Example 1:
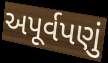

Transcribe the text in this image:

અપૂર્વપણું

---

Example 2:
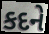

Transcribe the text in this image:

કદને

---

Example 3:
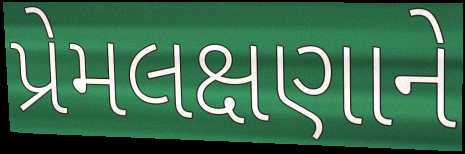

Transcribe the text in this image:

પ્રેમલક્ષણાને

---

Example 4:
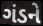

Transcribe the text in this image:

ગંડને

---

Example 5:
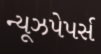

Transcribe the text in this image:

ન્યૂઝપેપર્સ